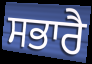
ਸਭਾਰੈ